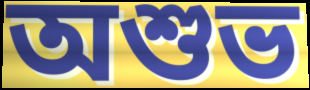
অশুভ